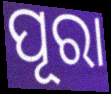
ପୂରା